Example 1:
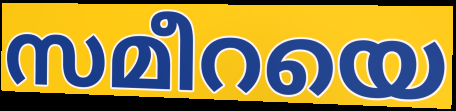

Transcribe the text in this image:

സമീറയെ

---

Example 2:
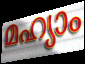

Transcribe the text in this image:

മഹ്യാം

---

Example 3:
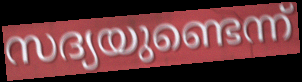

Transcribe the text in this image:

സദ്യയുണ്ടെന്ന്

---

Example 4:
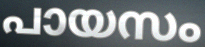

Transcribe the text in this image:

പായസം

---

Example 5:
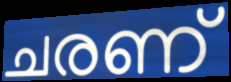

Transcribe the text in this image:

ചരണ്